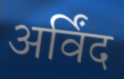
अर्विंद